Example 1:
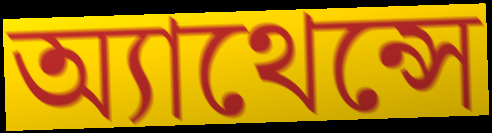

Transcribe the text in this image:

অ্যাথেন্সে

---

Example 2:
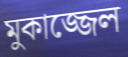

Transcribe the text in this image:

মুকাজ্জেল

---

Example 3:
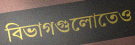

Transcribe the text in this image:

বিভাগগুলোতেও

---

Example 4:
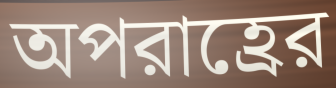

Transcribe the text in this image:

অপরাহ্রের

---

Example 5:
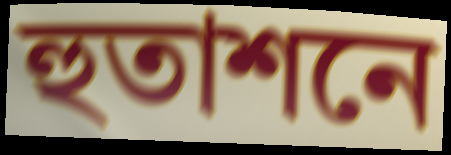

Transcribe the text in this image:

হুতাশনে